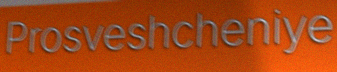
Prosveshcheniye